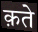
क़ते